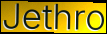
Jethro